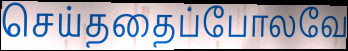
செய்ததைப்போலவே